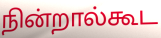
நின்றால்கூட